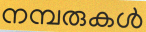
നമ്പരുകൾ